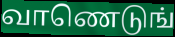
வாணெடுங்